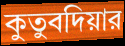
কুতুবদিয়ার